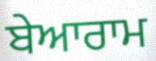
ਬੇਆਰਾਮ